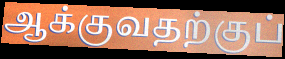
ஆக்குவதற்குப்